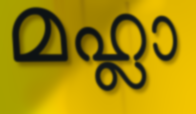
മഹ്ലാ